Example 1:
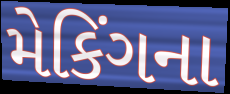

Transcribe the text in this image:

મેકિંગના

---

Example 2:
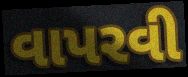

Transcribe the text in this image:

વાપરવી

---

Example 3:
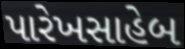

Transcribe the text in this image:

પારેખસાહેબ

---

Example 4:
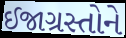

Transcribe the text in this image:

ઈજાગ્રસ્તોને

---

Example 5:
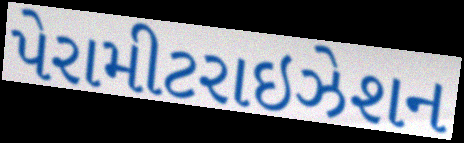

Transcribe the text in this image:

પેરામીટરાઇઝેશન